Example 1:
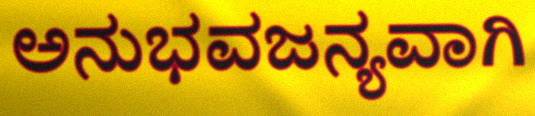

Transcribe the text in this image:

ಅನುಭವಜನ್ಯವಾಗಿ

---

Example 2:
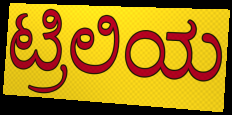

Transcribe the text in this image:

ಟ್ರಿಲಿಯ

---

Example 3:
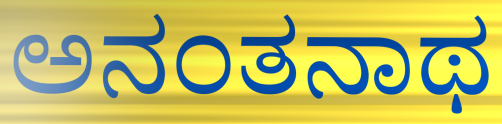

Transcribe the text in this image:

ಅನಂತನಾಥ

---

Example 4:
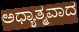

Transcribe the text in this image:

ಅಧ್ಯಾತ್ಮವಾದ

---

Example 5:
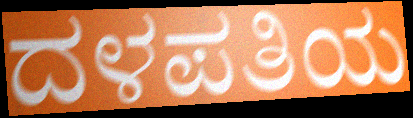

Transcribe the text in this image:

ದಳಪತಿಯ